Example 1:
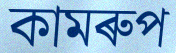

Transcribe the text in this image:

কামৰুপ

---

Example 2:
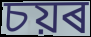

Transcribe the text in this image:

চয়ৰ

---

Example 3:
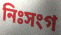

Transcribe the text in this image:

নিঃসংগ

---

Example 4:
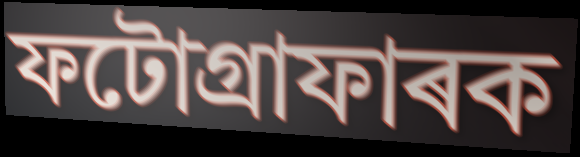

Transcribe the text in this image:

ফটোগ্ৰাফাৰক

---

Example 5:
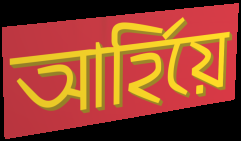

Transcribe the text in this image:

আৰ্হিয়ে